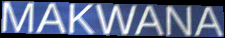
MAKWANA